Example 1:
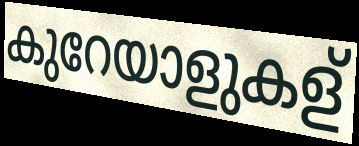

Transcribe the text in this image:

കുറേയാളുകള്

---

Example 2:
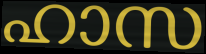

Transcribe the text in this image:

ഹാസ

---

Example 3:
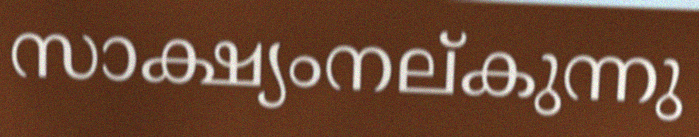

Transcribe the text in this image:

സാക്ഷ്യംനല്കുന്നു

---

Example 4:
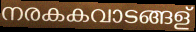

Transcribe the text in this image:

നരകകവാടങ്ങള്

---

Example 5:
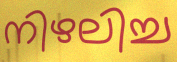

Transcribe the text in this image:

നിഴലിച്ച